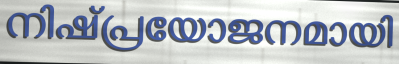
നിഷ്പ്രയോജനമായി